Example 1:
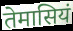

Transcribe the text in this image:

तेमासियं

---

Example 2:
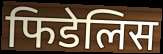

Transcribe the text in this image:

फिडेलिस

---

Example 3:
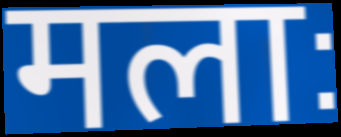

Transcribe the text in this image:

मलाः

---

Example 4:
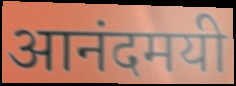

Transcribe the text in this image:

आनंदमयी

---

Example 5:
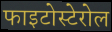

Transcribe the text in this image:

फाइटोस्टेरोल